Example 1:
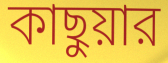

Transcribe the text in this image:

কাছুয়ার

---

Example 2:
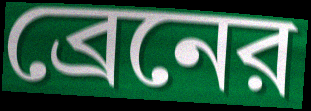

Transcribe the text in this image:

ব্রেনের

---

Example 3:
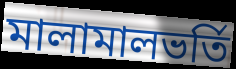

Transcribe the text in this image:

মালামালভর্তি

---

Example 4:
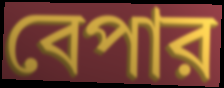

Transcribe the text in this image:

বেপার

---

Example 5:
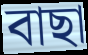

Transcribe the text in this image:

বাছা